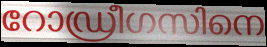
റോഡ്രീഗസിനെ